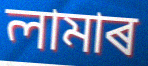
লামাৰ